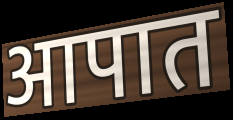
आपात